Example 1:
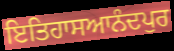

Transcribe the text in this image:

ਇਤਿਹਾਸਆਨੰਦਪੁਰ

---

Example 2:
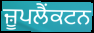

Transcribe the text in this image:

ਜ਼ੂਪਲੈਂਕਟਨ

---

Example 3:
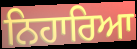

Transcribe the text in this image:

ਨਿਹਾਰਿਆ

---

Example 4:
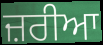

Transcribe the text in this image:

ਜ਼ਰੀਆ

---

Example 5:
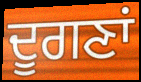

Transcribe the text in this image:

ਦੂਗਣਾਂ